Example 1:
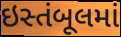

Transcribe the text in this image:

ઇસ્તંબૂલમાં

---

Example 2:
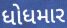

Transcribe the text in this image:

ધોધમાર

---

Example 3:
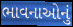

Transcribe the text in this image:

ભાવનાઓનું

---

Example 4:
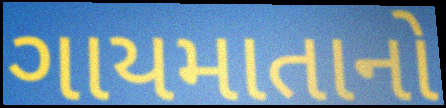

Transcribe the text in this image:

ગાયમાતાનો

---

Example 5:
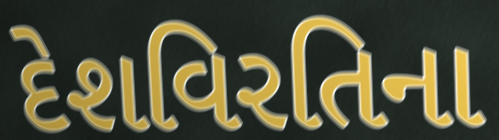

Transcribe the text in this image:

દેશવિરતિના